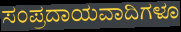
ಸಂಪ್ರದಾಯವಾದಿಗಳೂ